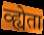
व्ह्येता